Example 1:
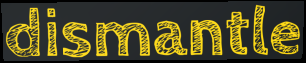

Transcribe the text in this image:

dismantle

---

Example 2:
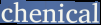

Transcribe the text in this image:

chenical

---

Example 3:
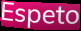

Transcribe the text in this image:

Espeto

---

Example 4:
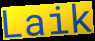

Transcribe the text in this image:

Laik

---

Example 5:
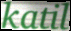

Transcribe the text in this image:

katil